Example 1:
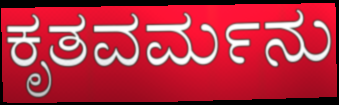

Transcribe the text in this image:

ಕೃತವರ್ಮನು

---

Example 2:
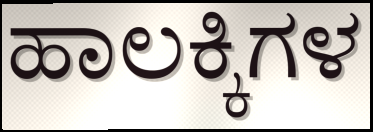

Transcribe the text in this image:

ಹಾಲಕ್ಕಿಗಳ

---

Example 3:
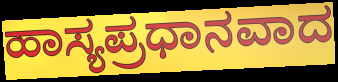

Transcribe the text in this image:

ಹಾಸ್ಯಪ್ರಧಾನವಾದ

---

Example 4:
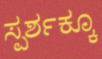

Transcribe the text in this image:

ಸ್ಪರ್ಶಕ್ಕೂ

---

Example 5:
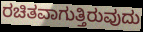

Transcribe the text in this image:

ರಚಿತವಾಗುತ್ತಿರುವುದು